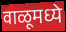
वाळूमध्ये